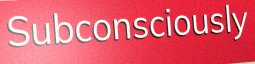
Subconsciously